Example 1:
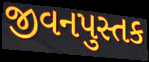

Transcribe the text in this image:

જીવનપુસ્તક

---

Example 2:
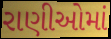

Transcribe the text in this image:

રાણીઓમાં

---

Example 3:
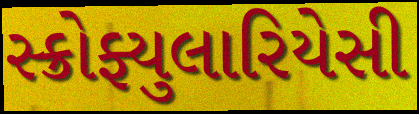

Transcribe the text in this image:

સ્ક્રોફ્યુલારિયેસી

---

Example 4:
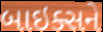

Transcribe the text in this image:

બાઇક્સને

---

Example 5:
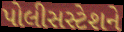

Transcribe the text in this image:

પોલીસસ્ટેશને